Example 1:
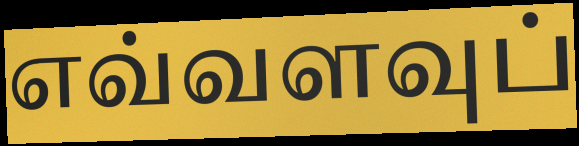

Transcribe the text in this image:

எவ்வளவுப்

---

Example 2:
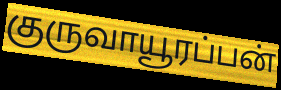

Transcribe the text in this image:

குருவாயூரப்பன்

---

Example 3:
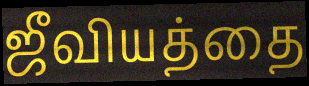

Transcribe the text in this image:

ஜீவியத்தை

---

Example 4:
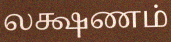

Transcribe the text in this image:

லக்ஷணம்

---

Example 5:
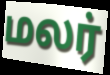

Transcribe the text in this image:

மலர்